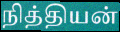
நித்தியன்